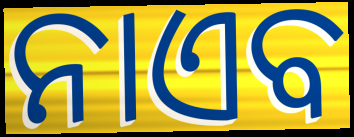
ନାଏବ